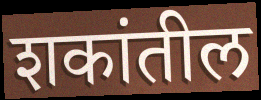
शकांतील